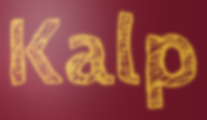
Kalp